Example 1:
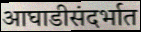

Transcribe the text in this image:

आघाडीसंदर्भात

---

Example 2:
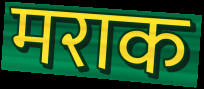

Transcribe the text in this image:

मराक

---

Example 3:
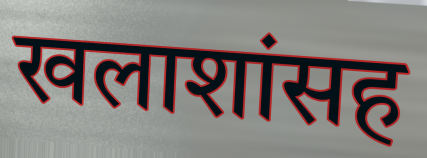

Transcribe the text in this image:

खलाशांसह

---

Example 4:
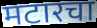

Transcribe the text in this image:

मटारचा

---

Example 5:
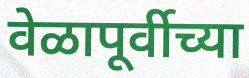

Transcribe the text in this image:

वेळापूर्वीच्या